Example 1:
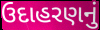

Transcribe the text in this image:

ઉદાહરણનું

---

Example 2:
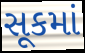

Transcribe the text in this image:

સૂકમાં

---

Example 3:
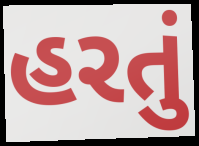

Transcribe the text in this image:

હરતું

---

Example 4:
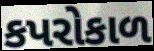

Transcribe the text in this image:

કપરોકાળ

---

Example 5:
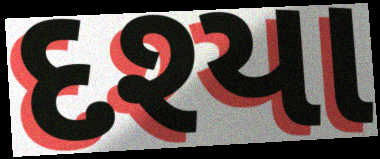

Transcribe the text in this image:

દશ્યા